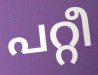
പറ്റീ